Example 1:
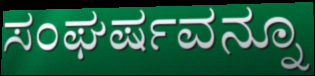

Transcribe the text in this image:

ಸಂಘರ್ಷವನ್ನೂ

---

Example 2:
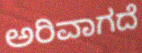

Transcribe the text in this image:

ಅರಿವಾಗದೆ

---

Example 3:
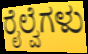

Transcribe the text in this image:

ರೈಲ್ವೆಗಳು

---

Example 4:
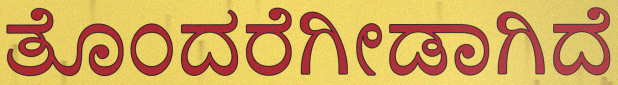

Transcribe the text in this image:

ತೊಂದರೆಗೀಡಾಗಿದೆ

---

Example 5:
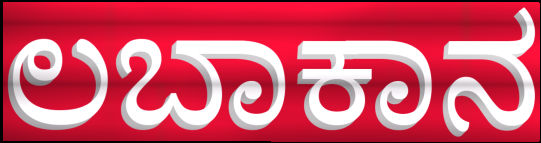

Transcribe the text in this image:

ಲಬಾಕಾನ